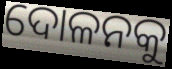
ଦୋଳନକୁ